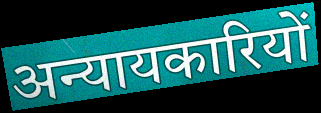
अन्यायकारियों